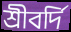
শ্রীবর্দি